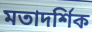
মতাদর্শিক